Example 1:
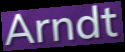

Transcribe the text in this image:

Arndt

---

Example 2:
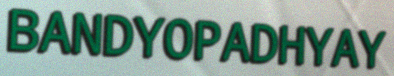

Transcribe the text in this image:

BANDYOPADHYAY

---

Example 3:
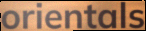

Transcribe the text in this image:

orientals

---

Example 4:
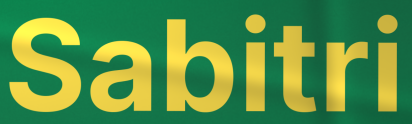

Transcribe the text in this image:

Sabitri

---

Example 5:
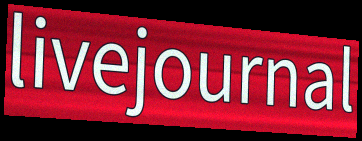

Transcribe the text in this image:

livejournal